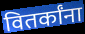
वितर्कांना